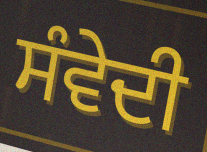
ਸੰਵੇਦੀ